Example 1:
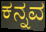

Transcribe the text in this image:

ಕನ್ನವ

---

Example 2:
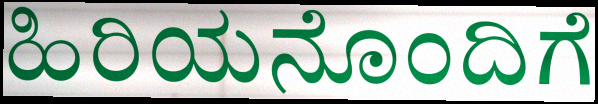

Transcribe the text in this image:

ಹಿರಿಯನೊಂದಿಗೆ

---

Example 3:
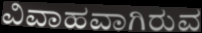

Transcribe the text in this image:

ವಿವಾಹವಾಗಿರುವ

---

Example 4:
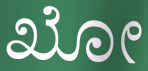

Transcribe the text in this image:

ಖೋ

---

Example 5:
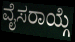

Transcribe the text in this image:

ವೈಸರಾಯ್ಗೆ